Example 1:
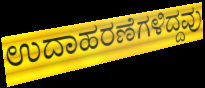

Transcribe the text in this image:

ಉದಾಹರಣೆಗಳಿದ್ದವು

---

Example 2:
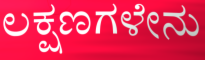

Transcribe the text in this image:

ಲಕ್ಷಣಗಳೇನು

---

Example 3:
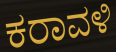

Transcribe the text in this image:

ಕರಾವಳಿ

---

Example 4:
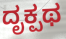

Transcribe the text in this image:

ದೃಕ್ಪಥ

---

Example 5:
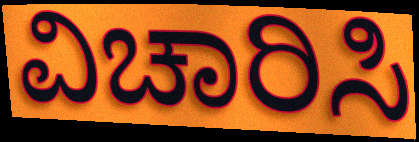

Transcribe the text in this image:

ವಿಚಾರಿಸಿ